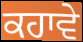
ਕਹਾਵੇ